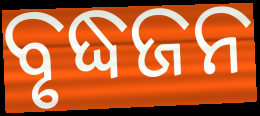
ବୃଦ୍ଧଜନ